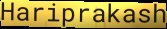
Hariprakash